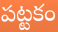
పట్టకం